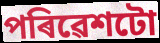
পৰিৱেশটো